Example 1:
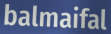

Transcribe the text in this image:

balmaifal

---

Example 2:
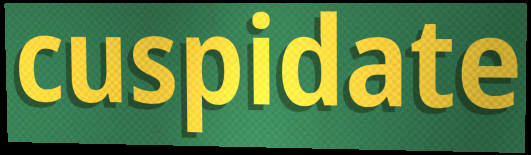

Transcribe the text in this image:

cuspidate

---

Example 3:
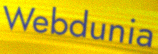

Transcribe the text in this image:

Webdunia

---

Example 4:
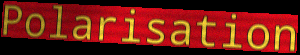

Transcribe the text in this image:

Polarisation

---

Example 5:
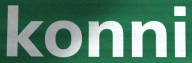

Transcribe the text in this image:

konni